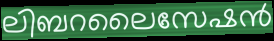
ലിബറലൈസേഷൻ